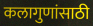
कलागुणांसाठी